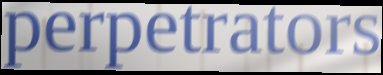
perpetrators